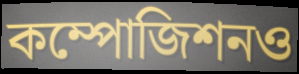
কম্পোজিশনও